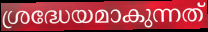
ശ്രദ്ധേയമാകുന്നത്